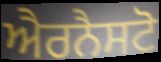
ਐਰਨੈਸਟੋ